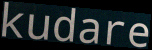
kudare